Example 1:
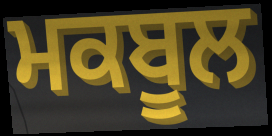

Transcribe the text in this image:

ਮਕਬੂਲ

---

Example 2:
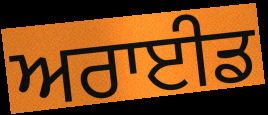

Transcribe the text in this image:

ਅਰਾਈਡ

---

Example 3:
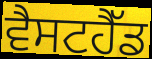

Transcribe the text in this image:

ਵੈਸਟਹੈੱਡ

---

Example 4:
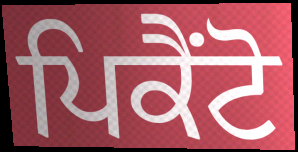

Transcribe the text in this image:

ਪਿਕੈਂਟੋ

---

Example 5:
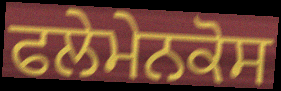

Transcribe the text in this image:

ਫਲੇਮੇਨਕੋਸ